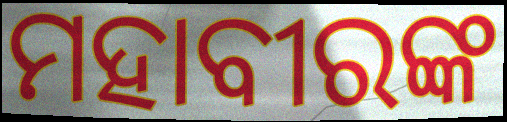
ମହାବୀରଙ୍କ